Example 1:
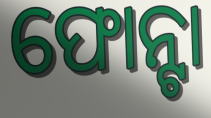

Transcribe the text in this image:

ଫୋନ୍ଟା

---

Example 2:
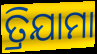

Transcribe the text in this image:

ତ୍ରିଯାମା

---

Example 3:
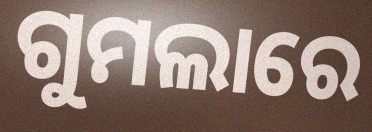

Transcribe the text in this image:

ଗୁମଲାରେ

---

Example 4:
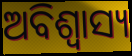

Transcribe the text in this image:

ଅବିଶ୍ଵାସ୍ୟ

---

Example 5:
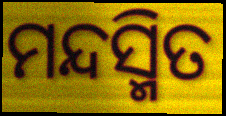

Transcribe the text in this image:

ମନ୍ଦସ୍ମିତ